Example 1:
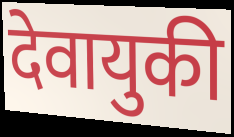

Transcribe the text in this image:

देवायुकी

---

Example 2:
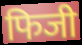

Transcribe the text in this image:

फिजी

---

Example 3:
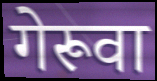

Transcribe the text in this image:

गेरूवा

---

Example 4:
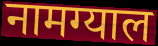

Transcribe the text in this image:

नामग्याल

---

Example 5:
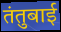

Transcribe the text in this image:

तंतुबाई